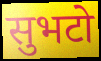
सुभटो